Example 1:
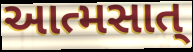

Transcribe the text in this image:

આત્મસાત્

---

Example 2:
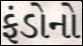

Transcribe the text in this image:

ફંડોનો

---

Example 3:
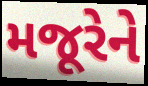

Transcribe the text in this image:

મજૂરેને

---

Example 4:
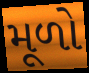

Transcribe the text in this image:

મૂળો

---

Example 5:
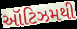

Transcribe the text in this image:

ઑટિઝમથી